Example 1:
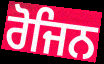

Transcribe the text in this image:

ਰੋਜਿਨ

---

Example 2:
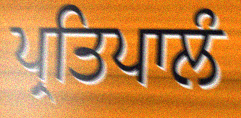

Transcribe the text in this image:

ਪ੍ਰਤਿਪਾਲੰ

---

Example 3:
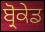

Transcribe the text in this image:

ਬ੍ਰੋਕੇਡ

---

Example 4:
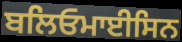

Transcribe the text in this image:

ਬਲਿਓਮਾਈਸਿਨ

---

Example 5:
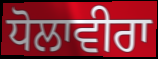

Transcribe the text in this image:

ਧੋਲਾਵੀਰਾ